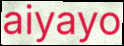
aiyayo